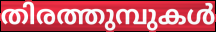
തിരത്തുമ്പുകൾ